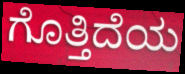
ಗೊತ್ತಿದೆಯ